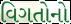
વિગતોનો